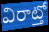
విరాట్తో